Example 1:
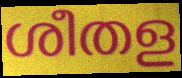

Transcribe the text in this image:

ശീതള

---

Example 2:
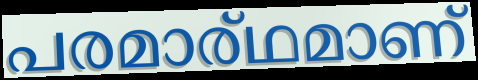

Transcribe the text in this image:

പരമാര്ഥമാണ്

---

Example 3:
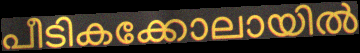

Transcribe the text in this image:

പീടികക്കോലായിൽ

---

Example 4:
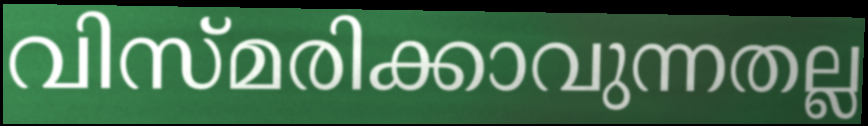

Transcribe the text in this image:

വിസ്മരിക്കാവുന്നതല്ല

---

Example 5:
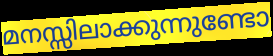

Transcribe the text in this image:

മനസ്സിലാക്കുന്നുണ്ടോ